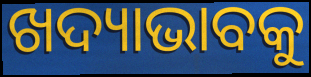
ଖଦ୍ୟାଭାବକୁ